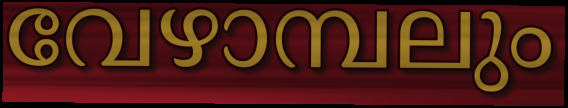
വേഴാമ്പലും